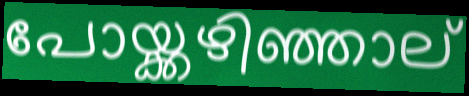
പോയ്ക്കഴിഞ്ഞാല്